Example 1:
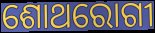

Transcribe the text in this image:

ଶୋଥରୋଗୀ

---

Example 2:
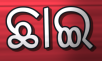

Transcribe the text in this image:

ଛାଇ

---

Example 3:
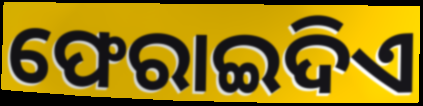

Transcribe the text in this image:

ଫେରାଇଦିଏ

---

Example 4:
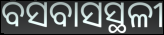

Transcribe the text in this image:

ବସବାସସ୍ଥଳୀ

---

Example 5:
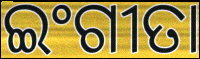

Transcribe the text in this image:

ଇଂଗୀତା